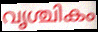
വൃശ്ചികം